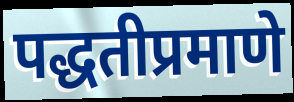
पद्धतीप्रमाणे